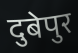
दुबेपुर